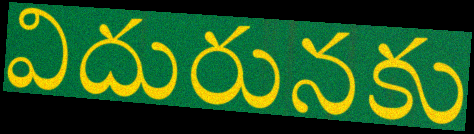
విదురునకు